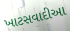
ખાટસવાદીઆ